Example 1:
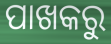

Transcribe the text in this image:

ପାଖକରୁ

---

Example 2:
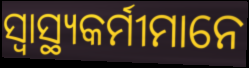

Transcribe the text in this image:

ସ୍ବାସ୍ଥ୍ୟକର୍ମୀମାନେ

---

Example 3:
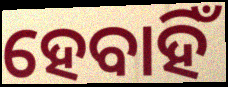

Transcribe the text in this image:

ହେବାହିଁ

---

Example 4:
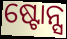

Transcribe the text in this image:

ଷ୍ଟୋନ୍ସ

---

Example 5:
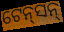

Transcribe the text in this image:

ଟେନ୍‌ସନ୍